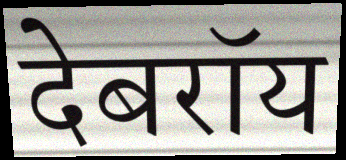
देबरॉय